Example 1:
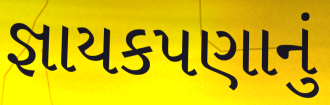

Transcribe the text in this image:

જ્ઞાયકપણાનું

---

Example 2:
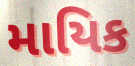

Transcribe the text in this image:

માયિક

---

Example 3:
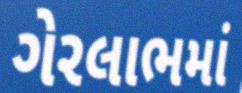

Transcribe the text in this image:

ગેરલાભમાં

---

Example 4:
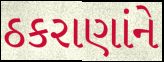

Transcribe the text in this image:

ઠકરાણાંને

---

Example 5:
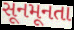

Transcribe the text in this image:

સૂનમૂનતા